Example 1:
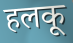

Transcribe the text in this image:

हलकू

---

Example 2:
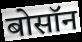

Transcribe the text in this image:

बोसॉन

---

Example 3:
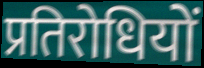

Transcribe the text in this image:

प्रतिरोधियों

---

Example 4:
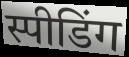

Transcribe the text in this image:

स्‍पीडिंग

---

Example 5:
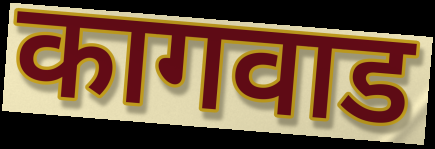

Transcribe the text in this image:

कागवाड